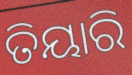
ତିୟାରି